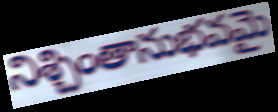
నిశ్చింతానుభవమై